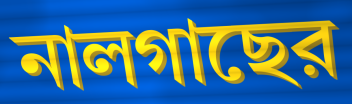
নালগাছের